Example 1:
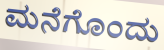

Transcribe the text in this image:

ಮನೆಗೊಂದು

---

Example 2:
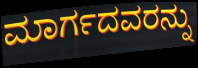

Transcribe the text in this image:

ಮಾರ್ಗದವರನ್ನು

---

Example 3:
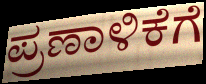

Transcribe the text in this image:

ಪ್ರಣಾಳಿಕೆಗೆ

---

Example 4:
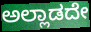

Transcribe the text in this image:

ಅಲ್ಲಾಡದೇ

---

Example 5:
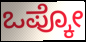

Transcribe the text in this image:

ಒಪ್ಕೋ